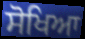
ਸੋਖਿਆ